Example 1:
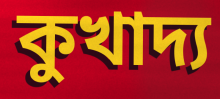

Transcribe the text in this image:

কুখাদ্য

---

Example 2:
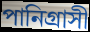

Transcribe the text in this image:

পানিগ্রাসী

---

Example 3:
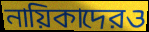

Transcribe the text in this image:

নায়িকাদেরও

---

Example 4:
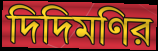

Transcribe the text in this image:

দিদিমণির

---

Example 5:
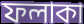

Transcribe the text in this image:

ফলাকা